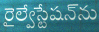
రైల్వేస్టేషన్‌ను